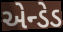
એન્ડેડ